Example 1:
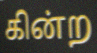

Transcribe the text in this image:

கின்ற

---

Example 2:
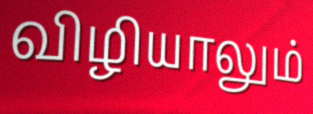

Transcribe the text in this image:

விழியாலும்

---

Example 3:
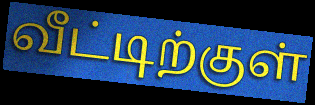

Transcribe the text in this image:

வீட்டிற்குள்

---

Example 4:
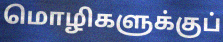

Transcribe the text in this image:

மொழிகளுக்குப்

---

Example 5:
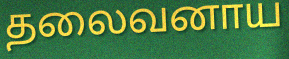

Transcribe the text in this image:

தலைவனாய